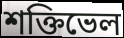
শক্তিভেল